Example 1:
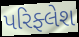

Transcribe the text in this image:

પરિફ્લેશ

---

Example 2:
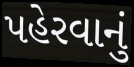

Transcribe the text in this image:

પહેરવાનું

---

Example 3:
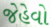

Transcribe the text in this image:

જેહેવો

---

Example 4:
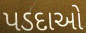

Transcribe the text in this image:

પડદાઓ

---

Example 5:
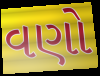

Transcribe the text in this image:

વણો